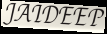
JAIDEEP